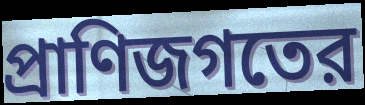
প্রাণিজগতের